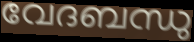
വേദബന്ധു